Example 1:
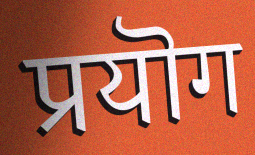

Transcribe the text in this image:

प्रयॊग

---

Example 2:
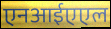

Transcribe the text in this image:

एनआईएएल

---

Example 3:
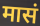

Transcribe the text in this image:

मासं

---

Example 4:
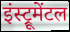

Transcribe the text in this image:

इंस्ट्रूमेंटल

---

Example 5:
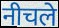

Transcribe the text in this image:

नीचले